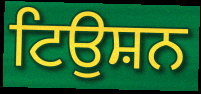
ਟਿਉਸ਼ਨ